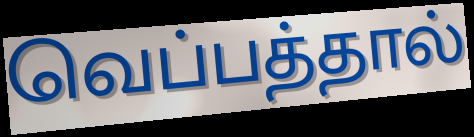
வெப்பத்தால்